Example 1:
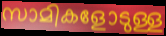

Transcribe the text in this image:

സാമികളോടുള്ള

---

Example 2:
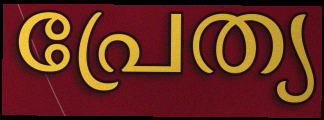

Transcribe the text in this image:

പ്രേത്യ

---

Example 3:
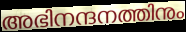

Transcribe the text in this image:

അഭിനന്ദനത്തിനും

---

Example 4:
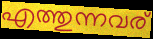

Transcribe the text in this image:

എത്തുന്നവര്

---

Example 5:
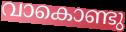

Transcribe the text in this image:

വാകൊണ്ടു